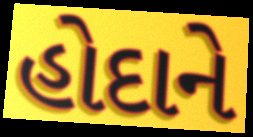
હોદાને